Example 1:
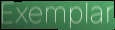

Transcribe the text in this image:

Exemplar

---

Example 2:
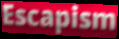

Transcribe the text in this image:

Escapism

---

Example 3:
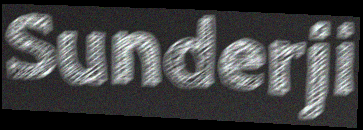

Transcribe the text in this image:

Sunderji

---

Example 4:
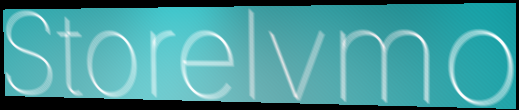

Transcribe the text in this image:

Storelvmo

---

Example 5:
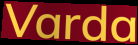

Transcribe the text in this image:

Varda